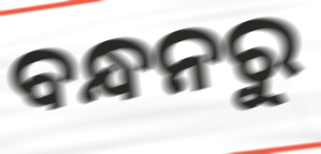
ବନ୍ଧନରୁ